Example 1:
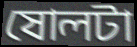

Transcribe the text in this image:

ষোলটা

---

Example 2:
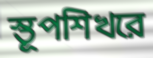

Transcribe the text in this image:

স্তূপশিখরে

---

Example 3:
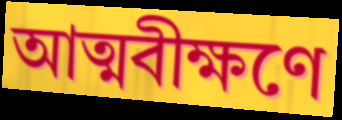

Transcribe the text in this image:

আত্মবীক্ষণে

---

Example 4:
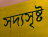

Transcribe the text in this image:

সদ্যসৃষ্ট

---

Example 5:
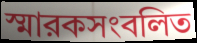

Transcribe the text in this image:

স্মারকসংবলিত